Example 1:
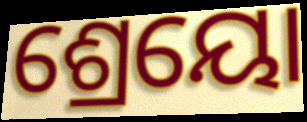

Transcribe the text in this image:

ଶ୍ରେୟୋ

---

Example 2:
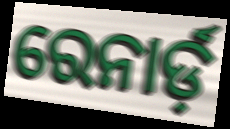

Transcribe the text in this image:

ରେନାର୍ଡ଼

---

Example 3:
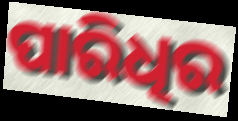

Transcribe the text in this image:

ପାରିଧିର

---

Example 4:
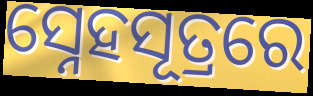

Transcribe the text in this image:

ସ୍ନେହସୂତ୍ରରେ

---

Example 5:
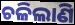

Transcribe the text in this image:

ଚଳିଲାଣି